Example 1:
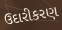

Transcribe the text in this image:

ઉદારીકરણ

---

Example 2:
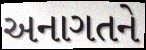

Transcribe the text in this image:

અનાગતને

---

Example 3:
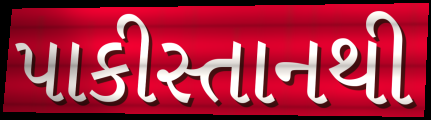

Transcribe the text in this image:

પાકીસ્તાનથી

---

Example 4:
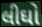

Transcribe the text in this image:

લીઘો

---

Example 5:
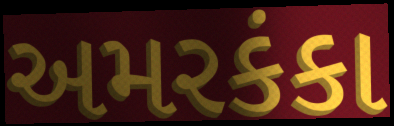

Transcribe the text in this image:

અમરકંકા